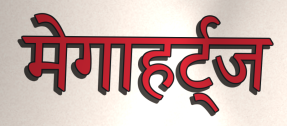
मेगाहर्ट्ज